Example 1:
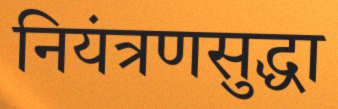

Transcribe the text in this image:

नियंत्रणसुद्धा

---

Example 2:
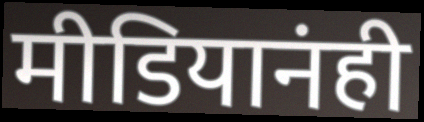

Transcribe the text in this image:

मीडियानंही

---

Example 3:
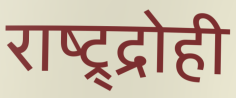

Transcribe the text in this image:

राष्ट्र्द्रोही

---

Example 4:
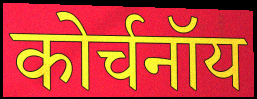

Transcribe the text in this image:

कोर्चनॉय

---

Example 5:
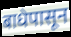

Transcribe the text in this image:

बाधेपासून